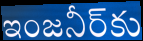
ఇంజనీర్‌కు